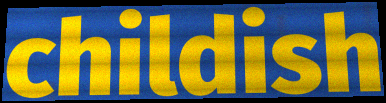
childish